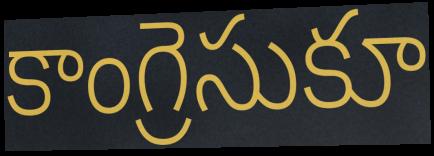
కాంగ్రెసుకూ